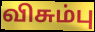
விசும்பு